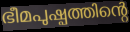
ഭീമപുഷ്പത്തിന്റെ